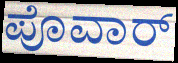
ಪೊವಾರ್